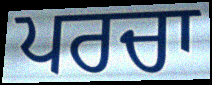
ਪਰਚਾ